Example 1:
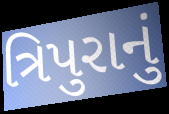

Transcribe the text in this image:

ત્રિપુરાનું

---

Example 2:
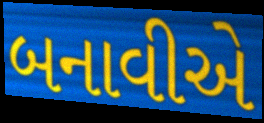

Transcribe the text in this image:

બનાવીએ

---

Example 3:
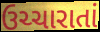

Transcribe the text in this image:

ઉચ્ચારાતાં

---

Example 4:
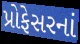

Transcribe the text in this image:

પ્રોફેસરનાં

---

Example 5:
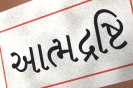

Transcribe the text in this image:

આત્મદ્રષ્ટિ